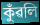
কুঁৱলি